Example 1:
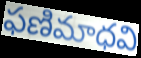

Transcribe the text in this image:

ఫణిమాధవి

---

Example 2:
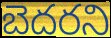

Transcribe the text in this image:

బెదరని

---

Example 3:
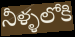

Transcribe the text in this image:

నీళ్ళలోకి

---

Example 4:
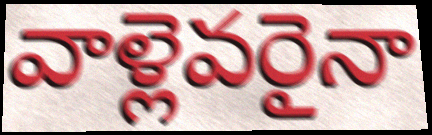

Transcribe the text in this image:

వాళ్లెవరైనా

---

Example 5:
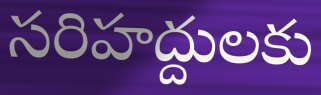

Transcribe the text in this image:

సరిహద్దులకు